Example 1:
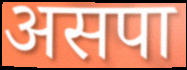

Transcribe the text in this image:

असपा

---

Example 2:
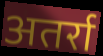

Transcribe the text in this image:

अतर्रा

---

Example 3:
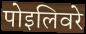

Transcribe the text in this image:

पोइलिवरे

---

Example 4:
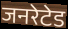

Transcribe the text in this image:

जनरेटेड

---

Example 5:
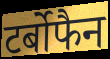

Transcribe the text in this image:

टर्बोफैन